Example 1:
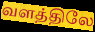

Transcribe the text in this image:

வளத்திலே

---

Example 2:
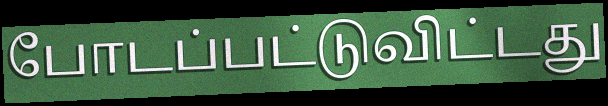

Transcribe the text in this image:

போடப்பட்டுவிட்டது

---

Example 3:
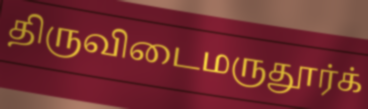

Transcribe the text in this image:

திருவிடைமருதூர்க்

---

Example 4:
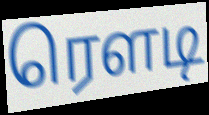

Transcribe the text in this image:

ரெளடி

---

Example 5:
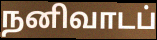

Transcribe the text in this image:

நனிவாடப்